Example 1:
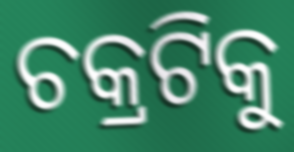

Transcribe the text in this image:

ଚକ୍ରଟିକୁ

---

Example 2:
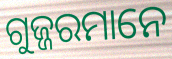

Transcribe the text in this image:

ଗୁଜ୍ଜରମାନେ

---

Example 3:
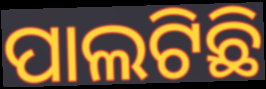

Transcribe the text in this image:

ପାଲଟିଛି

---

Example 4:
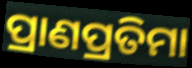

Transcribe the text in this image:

ପ୍ରାଣପ୍ରତିମା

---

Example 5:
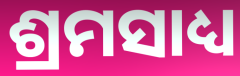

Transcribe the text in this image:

ଶ୍ରମସାଧ୍ୟ